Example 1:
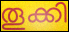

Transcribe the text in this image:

തൂക്കി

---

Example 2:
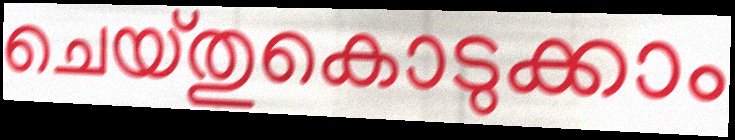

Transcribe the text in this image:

ചെയ്തുകൊടുക്കാം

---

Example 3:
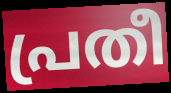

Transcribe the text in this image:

പ്രതീ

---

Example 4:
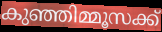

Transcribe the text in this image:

കുഞ്ഞിമ്മൂസക്ക്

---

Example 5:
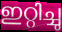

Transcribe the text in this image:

ഇറ്റിച്ചു